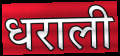
धराली